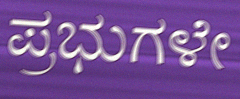
ಪ್ರಭುಗಳೇ